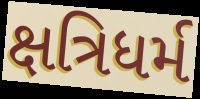
ક્ષત્રિધર્મ